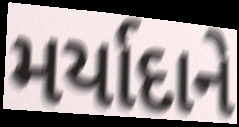
મર્યાદાને